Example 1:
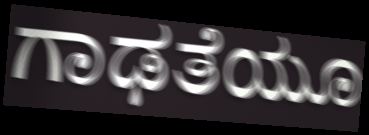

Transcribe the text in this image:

ಗಾಢತೆಯೂ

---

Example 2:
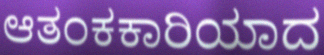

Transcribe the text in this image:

ಆತಂಕಕಾರಿಯಾದ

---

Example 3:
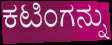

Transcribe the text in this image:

ಕಟಿಂಗನ್ನು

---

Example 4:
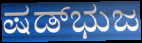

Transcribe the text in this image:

ಷಡ್‌ಭುಜ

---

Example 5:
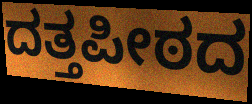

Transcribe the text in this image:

ದತ್ತಪೀಠದ